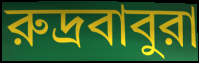
রুদ্রবাবুরা